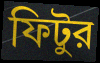
ফিটুর